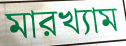
মারখ্যাম